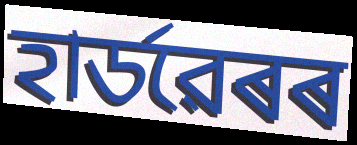
হাৰ্ডৱেৰৰ